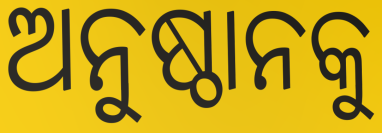
ଅନୁଷ୍ଠାନକୁ